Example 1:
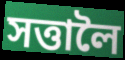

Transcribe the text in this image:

সত্তালৈ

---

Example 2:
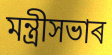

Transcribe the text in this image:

মন্ত্ৰীসভাৰ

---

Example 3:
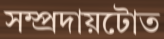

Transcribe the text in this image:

সম্প্ৰদায়টোত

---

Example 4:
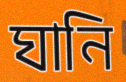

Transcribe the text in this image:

ঘানি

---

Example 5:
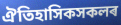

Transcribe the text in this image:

ঐতিহাসিকসকলৰ